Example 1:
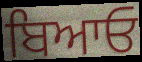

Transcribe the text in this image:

ਬਿਆਓ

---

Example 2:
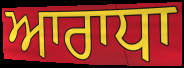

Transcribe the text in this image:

ਆਰਾਧਾ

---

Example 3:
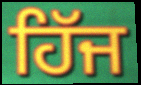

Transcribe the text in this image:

ਹਿੱਜ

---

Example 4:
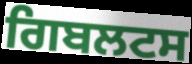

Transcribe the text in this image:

ਗਿਬਲਟਸ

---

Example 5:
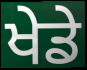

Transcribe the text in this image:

ਖੇਡੇ